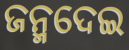
ଜନ୍ମଦେଇ